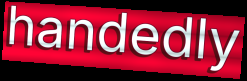
handedly